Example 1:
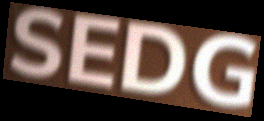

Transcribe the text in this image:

SEDG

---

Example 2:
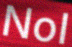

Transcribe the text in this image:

Nol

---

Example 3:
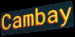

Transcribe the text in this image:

Cambay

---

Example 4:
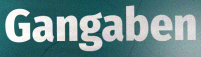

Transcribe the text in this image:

Gangaben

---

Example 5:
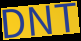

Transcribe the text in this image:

DNT